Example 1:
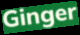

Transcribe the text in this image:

Ginger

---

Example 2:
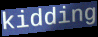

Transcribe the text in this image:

kidding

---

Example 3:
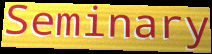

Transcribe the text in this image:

Seminary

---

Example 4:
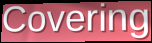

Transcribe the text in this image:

Covering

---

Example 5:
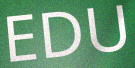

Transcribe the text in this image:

EDU